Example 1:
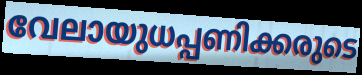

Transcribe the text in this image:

വേലായുധപ്പണിക്കരുടെ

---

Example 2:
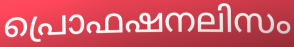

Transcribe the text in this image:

പ്രൊഫഷനലിസം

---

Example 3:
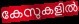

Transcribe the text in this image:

കേസുകളിൽ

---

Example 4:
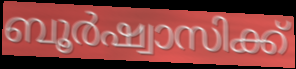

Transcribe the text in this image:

ബൂർഷ്വാസിക്ക്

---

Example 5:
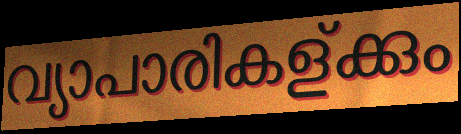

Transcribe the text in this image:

വ്യാപാരികള്ക്കും